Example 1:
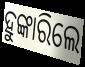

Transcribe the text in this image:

ହୁଙ୍କାରିଲେ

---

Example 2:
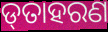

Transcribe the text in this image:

ଡ୍‌ତାହରଣ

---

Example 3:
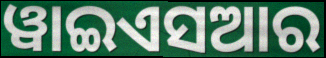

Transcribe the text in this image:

ୱାଇଏସଆର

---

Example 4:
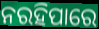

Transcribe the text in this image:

ନରହିପାରେ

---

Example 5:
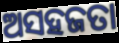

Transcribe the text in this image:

ଅସହଜତା